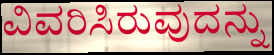
ವಿವರಿಸಿರುವುದನ್ನು